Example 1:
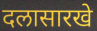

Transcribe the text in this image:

दलासारखे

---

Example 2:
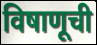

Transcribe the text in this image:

विषाणूची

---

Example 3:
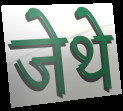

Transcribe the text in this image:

जेथे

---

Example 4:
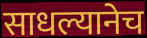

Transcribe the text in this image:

साधल्यानेच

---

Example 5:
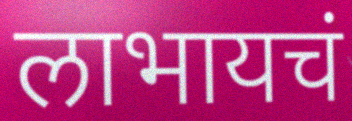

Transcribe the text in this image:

लाभायचं